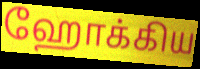
ஹோக்கிய